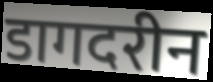
डागदरीन